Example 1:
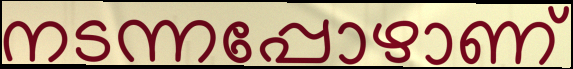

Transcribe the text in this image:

നടന്നപ്പോഴാണ്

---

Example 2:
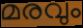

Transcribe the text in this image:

മരവും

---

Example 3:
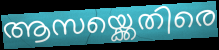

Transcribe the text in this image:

ആസയ്ക്കെതിരെ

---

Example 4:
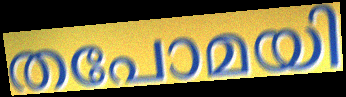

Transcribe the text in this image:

തപോമയി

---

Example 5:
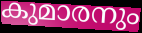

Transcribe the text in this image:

കുമാരനും